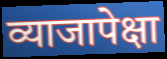
व्याजापेक्षा